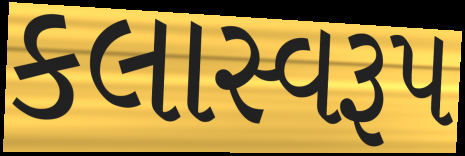
કલાસ્વરૂપ